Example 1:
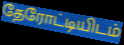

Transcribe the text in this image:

தேரோட்டியிடம்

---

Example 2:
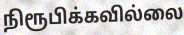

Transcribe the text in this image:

நிரூபிக்கவில்லை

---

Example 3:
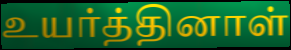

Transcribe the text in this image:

உயர்த்தினாள்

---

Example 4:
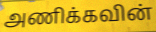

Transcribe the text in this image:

அணிக்கவின்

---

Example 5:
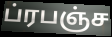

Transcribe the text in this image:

ப்ரபஞ்ச